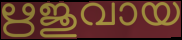
ഋജുവായ